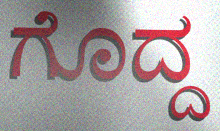
ಗೊದ್ದ